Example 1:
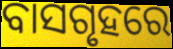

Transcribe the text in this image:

ବାସଗୃହରେ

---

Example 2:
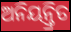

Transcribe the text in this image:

ଅନିୟନ୍ତ୍ରିତ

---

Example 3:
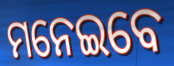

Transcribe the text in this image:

ମନେଇବେ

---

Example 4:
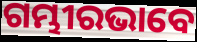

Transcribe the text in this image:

ଗମ୍ଭୀରଭାବେ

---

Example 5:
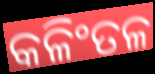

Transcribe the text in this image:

କଳିଂତଳ